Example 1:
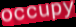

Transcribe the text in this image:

occupy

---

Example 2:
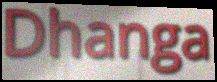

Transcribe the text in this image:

Dhanga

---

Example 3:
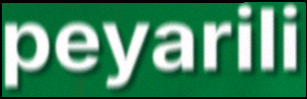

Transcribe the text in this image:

peyarili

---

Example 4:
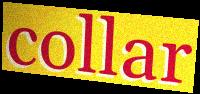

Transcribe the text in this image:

collar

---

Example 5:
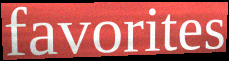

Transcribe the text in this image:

favorites